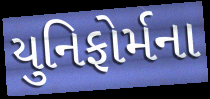
યુનિફોર્મના